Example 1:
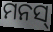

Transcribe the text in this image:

ମନସ୍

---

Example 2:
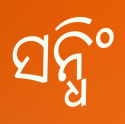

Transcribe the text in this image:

ସନ୍ଧିଂ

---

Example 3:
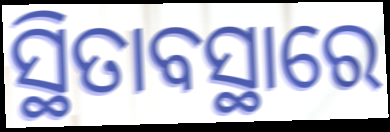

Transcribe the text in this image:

ସ୍ଥିତାବସ୍ଥାରେ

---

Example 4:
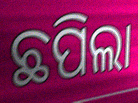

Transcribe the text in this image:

ଛପିଲା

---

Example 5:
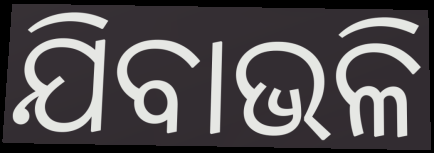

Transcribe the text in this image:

ଯିବାଭଳି